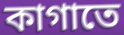
কাগাতে